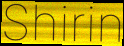
Shirin